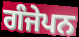
ਗੰਜੇਪਨ